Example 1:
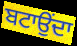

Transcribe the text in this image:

ਬਟਾਉਂਦਾ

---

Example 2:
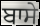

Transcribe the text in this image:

ਬਾਸੇ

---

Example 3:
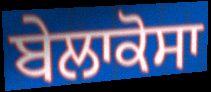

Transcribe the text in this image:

ਬੇਲਾਕੋਸਾ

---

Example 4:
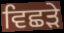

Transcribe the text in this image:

ਵਿਛੜੇ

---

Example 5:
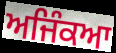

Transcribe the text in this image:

ਅਜਿੰਕਆ